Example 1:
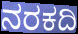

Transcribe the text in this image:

ನರಕದಿ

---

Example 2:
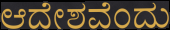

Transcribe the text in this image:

ಆದೇಶವೆಂದು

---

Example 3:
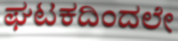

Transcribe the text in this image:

ಘಟಕದಿಂದಲೇ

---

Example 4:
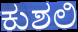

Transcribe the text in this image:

ಕುಶಲಿ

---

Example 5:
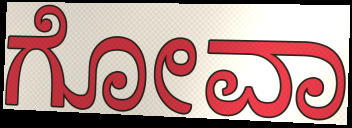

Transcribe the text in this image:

ಗೋವಾ